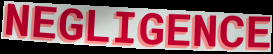
NEGLIGENCE